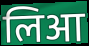
लिआ